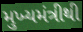
મુખ્યમંત્રીથી